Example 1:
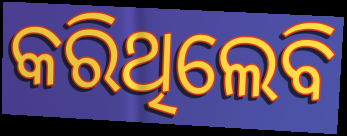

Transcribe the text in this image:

କରିଥିଲେବି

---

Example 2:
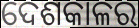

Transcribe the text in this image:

ଦେଶକାଳର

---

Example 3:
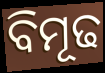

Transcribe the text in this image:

ବିମୂଢ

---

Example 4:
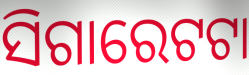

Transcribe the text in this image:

ସିଗାରେଟଟା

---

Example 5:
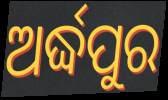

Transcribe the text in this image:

ଅର୍ଦ୍ଧପୁର